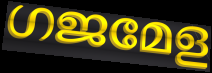
ഗജമേള